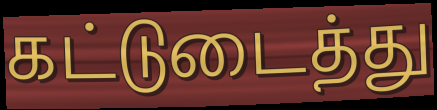
கட்டுடைத்து